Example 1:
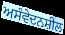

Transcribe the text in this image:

ਅਸੰਵੇਦਨਸ਼ੀਲ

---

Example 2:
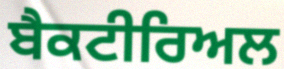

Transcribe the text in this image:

ਬੈਕਟੀਰਿਅਲ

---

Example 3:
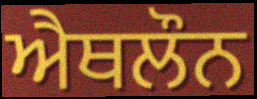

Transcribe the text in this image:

ਐਥਲੌਨ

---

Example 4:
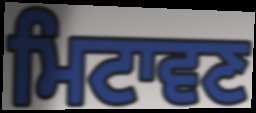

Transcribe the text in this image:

ਮਿਟਾਵਣ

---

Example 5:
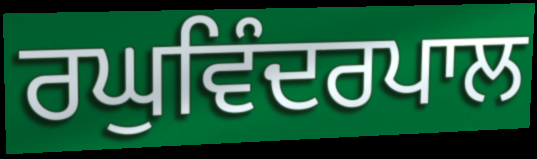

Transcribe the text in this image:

ਰਘੁਵਿੰਦਰਪਾਲ